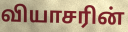
வியாசரின்